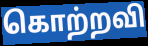
கொற்றவி